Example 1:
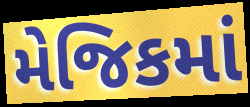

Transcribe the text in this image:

મેજિકમાં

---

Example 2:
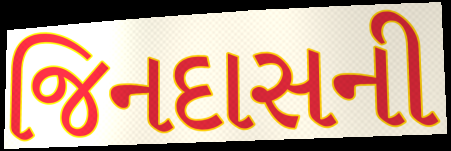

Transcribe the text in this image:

જિનદાસની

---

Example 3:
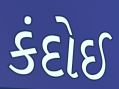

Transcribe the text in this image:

કંદોઈ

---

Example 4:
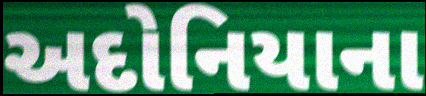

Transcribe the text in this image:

અદોનિયાના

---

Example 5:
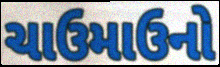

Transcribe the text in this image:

ચાઉમાઉનો